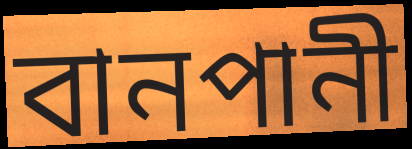
বানপানী